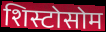
शिस्टोसोम